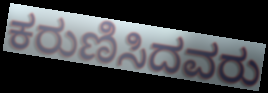
ಕರುಣಿಸಿದವರು